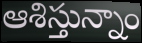
ఆశిస్తున్నాం